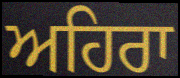
ਅਹਿਰਾ